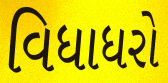
વિધાધરો